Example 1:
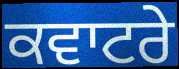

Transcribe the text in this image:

ਕਵਾਟਰੇ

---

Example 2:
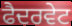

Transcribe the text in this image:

ਫੈਦਰਵੇਟ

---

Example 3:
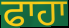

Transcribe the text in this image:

ਫਾਹਾ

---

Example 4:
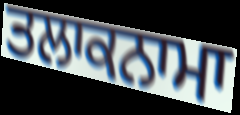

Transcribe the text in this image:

ਤਲਾਕਨਾਮਾ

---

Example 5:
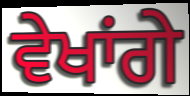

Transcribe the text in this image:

ਵੇਖਾਂਗੇ